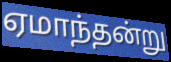
ஏமாந்தன்று